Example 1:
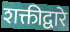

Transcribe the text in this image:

शक्तीद्वारे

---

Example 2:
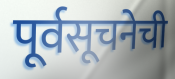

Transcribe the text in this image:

पूर्वसूचनेची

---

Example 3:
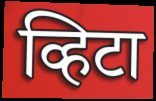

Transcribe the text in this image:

व्हिटा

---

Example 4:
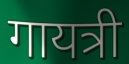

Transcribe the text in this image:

गायत्री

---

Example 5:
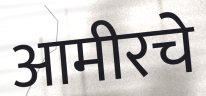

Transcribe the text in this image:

आमीरचे